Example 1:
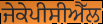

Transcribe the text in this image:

ਜੇਕੇਪੀਸੀਐੱਲ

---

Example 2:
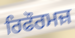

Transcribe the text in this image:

ਰਿਫੌਰਮਜ਼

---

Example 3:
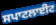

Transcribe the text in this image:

ਸਪਾਟਲਾਈਟ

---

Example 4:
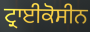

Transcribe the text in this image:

ਟ੍ਰਾਈਕੋਸੀਨ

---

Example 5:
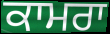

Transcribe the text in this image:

ਕਾਮਰਾ